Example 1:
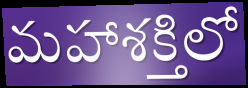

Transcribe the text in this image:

మహాశక్తిలో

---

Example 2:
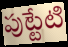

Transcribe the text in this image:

పుట్టేటి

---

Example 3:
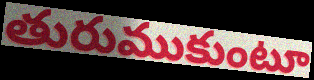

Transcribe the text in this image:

తురుముకుంటూ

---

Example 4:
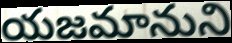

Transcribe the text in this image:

యజమానుని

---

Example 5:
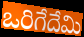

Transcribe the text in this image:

ఒరిగేదేమి